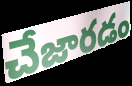
చేజారడం